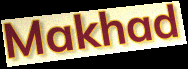
Makhad